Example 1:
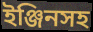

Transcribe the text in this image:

ইঞ্জিনসহ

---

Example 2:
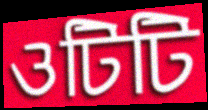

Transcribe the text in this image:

ওটিটি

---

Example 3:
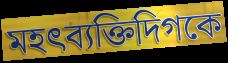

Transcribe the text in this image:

মহৎব্যক্তিদিগকে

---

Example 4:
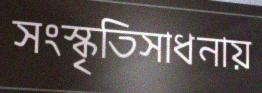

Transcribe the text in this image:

সংস্কৃতিসাধনায়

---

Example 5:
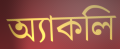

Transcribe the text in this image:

অ্যাকলি